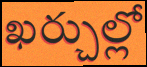
ఖర్చుల్లో